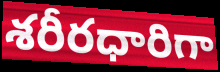
శరీరధారిగా